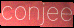
conjee